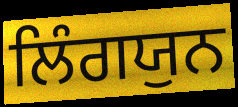
ਲਿੰਗਯੁਨ